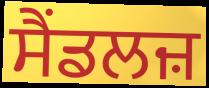
ਸੈਂਡਲਜ਼